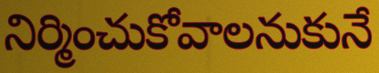
నిర్మించుకోవాలనుకునే